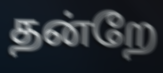
தன்றே